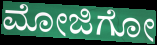
ಮೋಜಿಗೋ